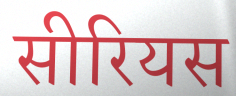
सीरियस